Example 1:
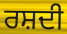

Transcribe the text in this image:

ਰਸ਼ਦੀ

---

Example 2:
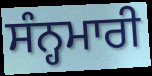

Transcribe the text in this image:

ਸੰਨ੍ਹਮਾਰੀ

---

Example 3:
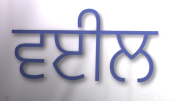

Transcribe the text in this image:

ਵਈਲ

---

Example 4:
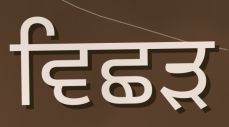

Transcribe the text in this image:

ਵਿਛਡ਼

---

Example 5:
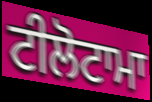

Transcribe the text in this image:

ਟੀਲੋਟਾਮਾ